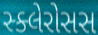
સ્ક્લેરોસસ